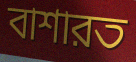
বাশারত